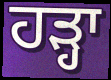
ਹੜ੍ਹਾ